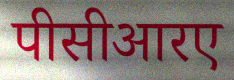
पीसीआरए